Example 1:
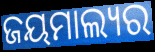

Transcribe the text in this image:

ଜୟମାଲ୍ୟର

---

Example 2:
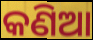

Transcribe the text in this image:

କଣିଆ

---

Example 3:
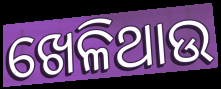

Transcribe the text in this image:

ଖେଳିଥାଉ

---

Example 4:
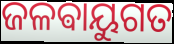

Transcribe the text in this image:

ଜଳଵାୟୁଗତ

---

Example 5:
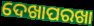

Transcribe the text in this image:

ଦେଖାପରଖା